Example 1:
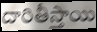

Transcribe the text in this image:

దారితీస్తాయి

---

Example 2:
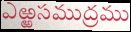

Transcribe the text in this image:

ఎఱ్ఱసముద్రము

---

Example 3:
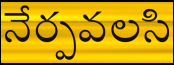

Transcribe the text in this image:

నేర్పవలసి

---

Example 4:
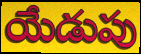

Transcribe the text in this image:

యేడుపు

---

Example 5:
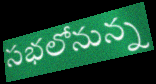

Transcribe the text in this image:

సభలోనున్న